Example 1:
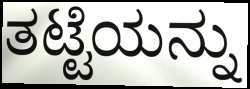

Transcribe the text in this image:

ತಟ್ಟೆಯನ್ನು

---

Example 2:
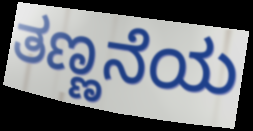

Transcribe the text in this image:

ತಣ್ಣನೆಯ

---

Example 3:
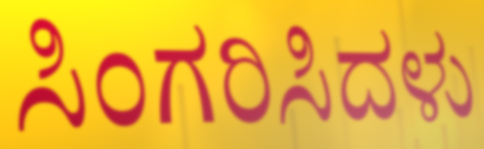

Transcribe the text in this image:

ಸಿಂಗರಿಸಿದಳು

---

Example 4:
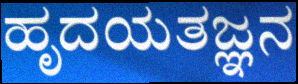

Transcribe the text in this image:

ಹೃದಯತಜ್ಞನ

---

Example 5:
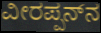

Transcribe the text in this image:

ವೀರಪ್ಪನ್‍ನ